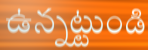
ఉన్నట్టుండి